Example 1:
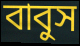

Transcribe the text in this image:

বাবুস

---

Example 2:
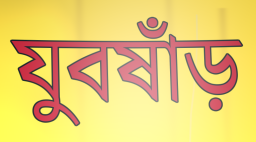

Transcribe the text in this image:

যুবষাঁড়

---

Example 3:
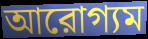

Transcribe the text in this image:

আরোগ্যম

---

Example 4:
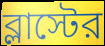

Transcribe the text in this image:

ব্লাস্টের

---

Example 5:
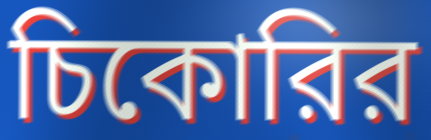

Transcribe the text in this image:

চিকোরির